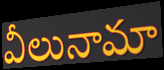
వీలునామా